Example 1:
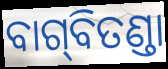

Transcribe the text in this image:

ବାଗ୍‌ବିତଣ୍ଡା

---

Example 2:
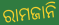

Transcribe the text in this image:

ରାମଜାନି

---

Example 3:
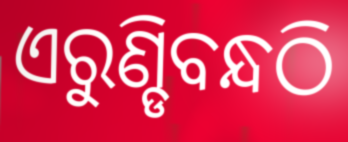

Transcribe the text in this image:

ଏରୁଣ୍ଡିବନ୍ଧଠି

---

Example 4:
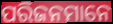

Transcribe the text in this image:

ପରିଜନମାନେ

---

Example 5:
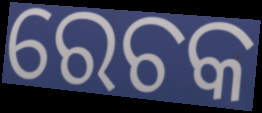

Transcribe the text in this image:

ରେଚକ